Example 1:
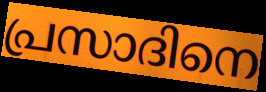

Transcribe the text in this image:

പ്രസാദിനെ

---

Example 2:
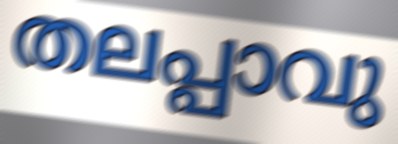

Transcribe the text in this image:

തലപ്പാവു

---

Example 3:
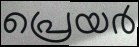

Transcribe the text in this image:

പ്രെയർ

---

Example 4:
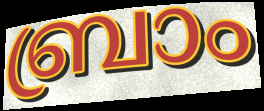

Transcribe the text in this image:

ബ്രാം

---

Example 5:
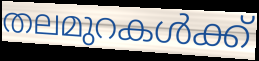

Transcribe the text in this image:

തലമുറകൾക്ക്